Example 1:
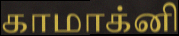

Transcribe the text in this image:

காமாக்னி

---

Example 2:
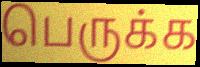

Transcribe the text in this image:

பெருக்க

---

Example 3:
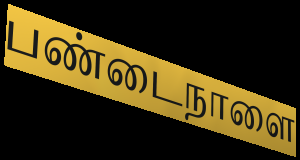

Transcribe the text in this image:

பண்டைநாளை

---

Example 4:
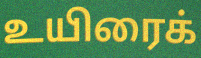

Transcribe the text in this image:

உயிரைக்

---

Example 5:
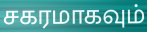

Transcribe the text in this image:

சகரமாகவும்